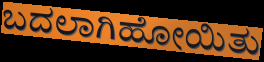
ಬದಲಾಗಿಹೋಯಿತು